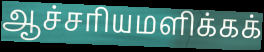
ஆச்சரியமளிக்கக்